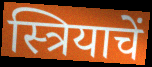
स्त्रियाचें